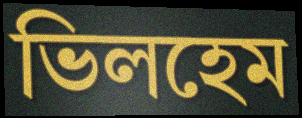
ভিলহেম